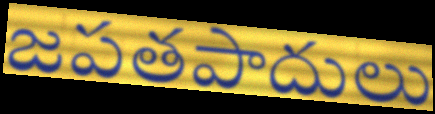
జపతపాదులు